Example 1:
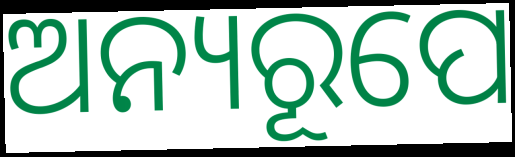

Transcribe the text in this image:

ଅନ୍ୟରୂପେ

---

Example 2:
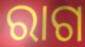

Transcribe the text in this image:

ରାଗ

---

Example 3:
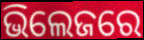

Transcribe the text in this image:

ଭିଲେଜରେ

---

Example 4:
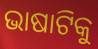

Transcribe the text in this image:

ଭାଷାଟିକୁ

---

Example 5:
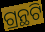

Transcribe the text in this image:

ଗ୍ରନ୍ଥଟି